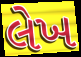
લેખ